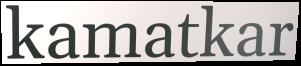
kamatkar